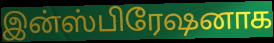
இன்ஸ்பிரேஷனாக